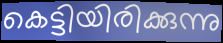
കെട്ടിയിരിക്കുന്നു